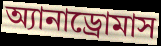
অ্যানাড্রোমাস